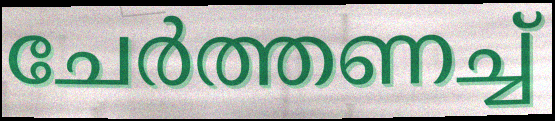
ചേർത്തണച്ച്